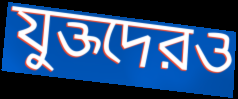
যুক্তদেরও